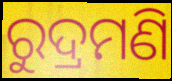
ରୁଦ୍ରମଣି